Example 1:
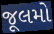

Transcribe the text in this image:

જૂલમો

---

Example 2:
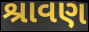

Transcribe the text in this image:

શ્રાવણ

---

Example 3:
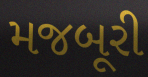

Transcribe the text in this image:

મજબૂરી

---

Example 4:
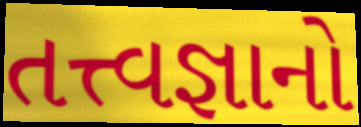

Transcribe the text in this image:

તત્ત્વજ્ઞાનો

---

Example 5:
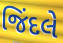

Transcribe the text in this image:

જિંદલે